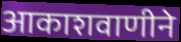
आकाशवाणीने